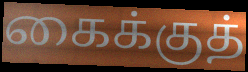
கைக்குத்